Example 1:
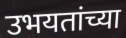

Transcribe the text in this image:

उभयतांच्या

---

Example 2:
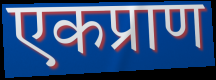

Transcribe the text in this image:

एकप्राण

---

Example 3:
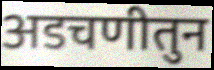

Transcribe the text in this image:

अडचणीतुन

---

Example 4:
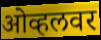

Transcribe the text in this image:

ओव्हलवर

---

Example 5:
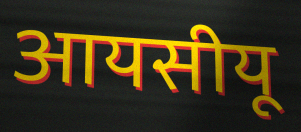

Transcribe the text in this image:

आयसीयू